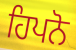
ਹਿਪਨੋ